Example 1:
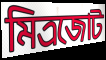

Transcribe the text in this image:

মিত্রজোট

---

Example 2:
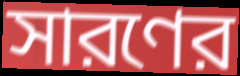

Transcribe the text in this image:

সারণের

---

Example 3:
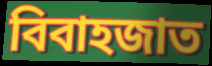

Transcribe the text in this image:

বিবাহজাত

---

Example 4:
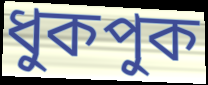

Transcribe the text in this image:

ধুকপুক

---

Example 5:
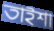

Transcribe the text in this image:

তাইশা